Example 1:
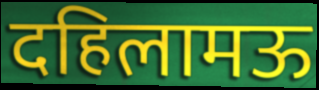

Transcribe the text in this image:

दहिलामऊ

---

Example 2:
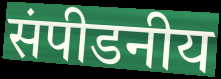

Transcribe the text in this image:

संपीडनीय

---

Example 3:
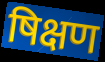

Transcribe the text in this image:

षिक्षण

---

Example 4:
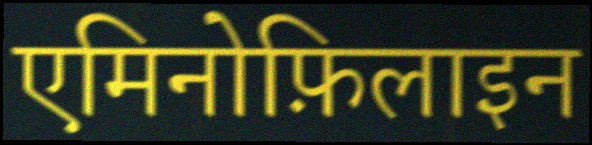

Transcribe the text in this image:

एमिनोफ़िलाइन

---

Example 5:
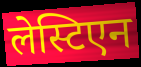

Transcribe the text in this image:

लेस्टिएन